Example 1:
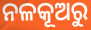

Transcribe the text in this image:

ନଳକୂଅରୁ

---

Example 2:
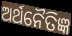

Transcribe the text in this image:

ଅର୍ଥନୈତିଜ୍ଞ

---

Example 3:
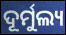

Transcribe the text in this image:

ଦୂର୍ମୁଲ୍ୟ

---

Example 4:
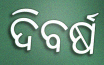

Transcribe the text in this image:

ଦିବର୍ଷ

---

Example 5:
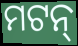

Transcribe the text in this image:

ମଟନ୍